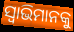
ସ୍ୱାଭିମାନକୁ